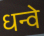
धन्वे